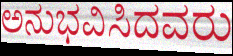
ಅನುಭವಿಸಿದವರು